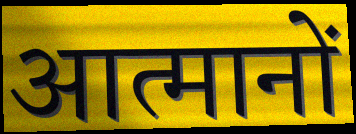
आत्मानों